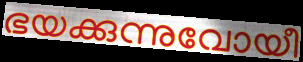
ഭയക്കുന്നുവോയീ